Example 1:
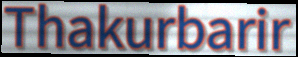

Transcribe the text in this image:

Thakurbarir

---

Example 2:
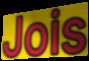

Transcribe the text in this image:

Jois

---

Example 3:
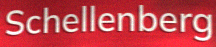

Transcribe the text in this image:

Schellenberg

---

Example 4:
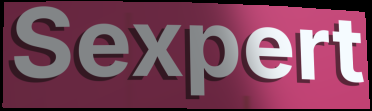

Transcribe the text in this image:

Sexpert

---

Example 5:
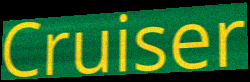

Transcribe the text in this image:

Cruiser